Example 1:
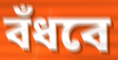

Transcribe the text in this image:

বঁধবে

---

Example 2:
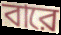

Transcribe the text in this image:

বারে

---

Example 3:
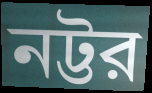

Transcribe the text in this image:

নট্টর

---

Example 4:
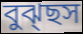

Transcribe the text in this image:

বুঝ্ছস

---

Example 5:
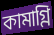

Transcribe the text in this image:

কামাগ্নি